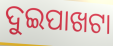
ଦୁଇପାଖଟା